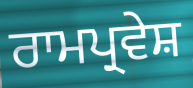
ਰਾਮਪ੍ਰਵੇਸ਼